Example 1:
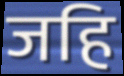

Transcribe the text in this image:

जहि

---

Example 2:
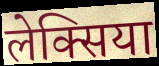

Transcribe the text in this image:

लेक्सिया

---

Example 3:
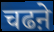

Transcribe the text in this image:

चढऩे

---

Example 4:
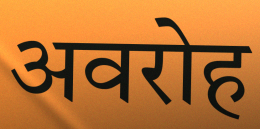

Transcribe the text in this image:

अवरोह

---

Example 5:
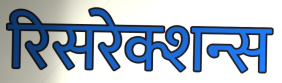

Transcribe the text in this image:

रिसरेक्शन्स